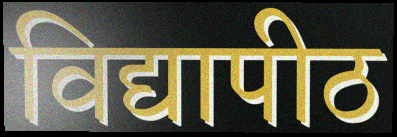
विद्यापीठ